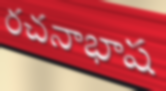
రచనాభాష